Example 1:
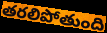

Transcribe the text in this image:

తరలిపోతుంది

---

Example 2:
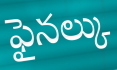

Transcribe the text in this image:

ఫైనల్కు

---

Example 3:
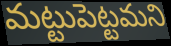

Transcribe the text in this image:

మట్టుపెట్టమని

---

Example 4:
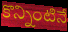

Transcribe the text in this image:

కొన్నింటినే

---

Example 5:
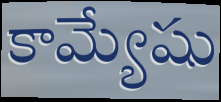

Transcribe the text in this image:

కామ్యేషు